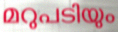
മറുപടിയും